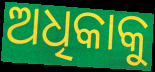
ଅଧିକାକୁ